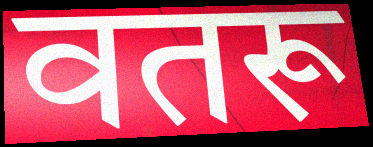
वतरू